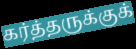
கர்த்தருக்குக்